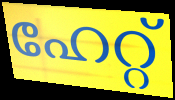
ഹേറ്റ്